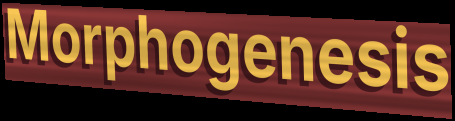
Morphogenesis